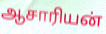
ஆசாரியன்